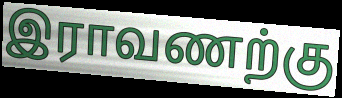
இராவணற்கு